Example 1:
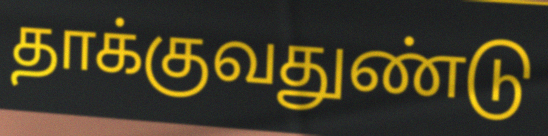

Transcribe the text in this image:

தாக்குவதுண்டு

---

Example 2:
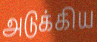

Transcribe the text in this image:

அடுக்கிய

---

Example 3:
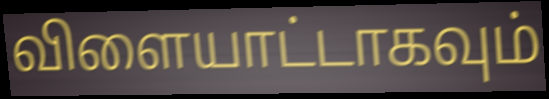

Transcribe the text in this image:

விளையாட்டாகவும்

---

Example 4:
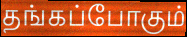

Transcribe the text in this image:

தங்கப்போகும்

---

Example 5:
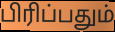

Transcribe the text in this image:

பிரிப்பதும்